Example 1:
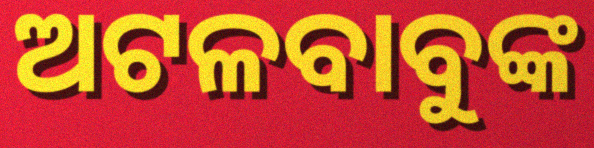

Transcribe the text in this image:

ଅଟଳବାବୁଙ୍କ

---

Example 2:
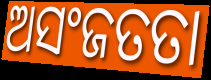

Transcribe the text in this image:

ଅସଂଜତତା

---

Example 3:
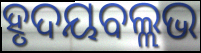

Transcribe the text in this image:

ହୃଦୟବଲ୍ଲଭ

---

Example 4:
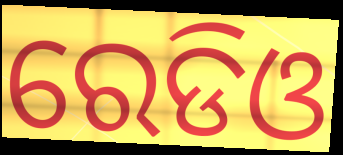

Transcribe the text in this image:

ରେଡିଓ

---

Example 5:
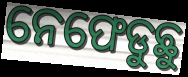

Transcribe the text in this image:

ନେଫେଡୁଛୁ